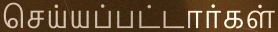
செய்யப்பட்டார்கள்